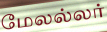
மேலல்லர்